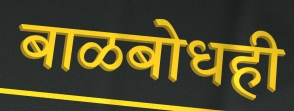
बाळबोधही